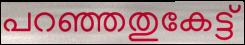
പറഞ്ഞതുകേട്ട്